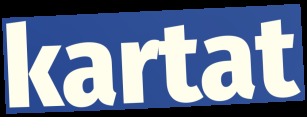
kartat